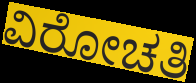
ವಿರೋಚತಿ